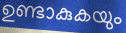
ഉണ്ടാകുകയും